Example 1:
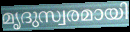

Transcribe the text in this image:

മൃദുസ്വരമായി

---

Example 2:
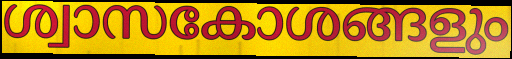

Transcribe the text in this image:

ശ്വാസകോശങ്ങളും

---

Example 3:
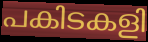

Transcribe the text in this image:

പകിടകളി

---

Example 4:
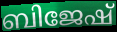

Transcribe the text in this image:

ബിജേഷ്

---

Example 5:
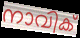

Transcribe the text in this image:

നാവിക്